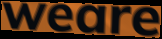
weare